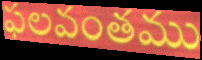
ఫలవంతము